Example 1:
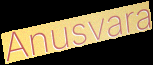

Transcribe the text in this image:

Anusvara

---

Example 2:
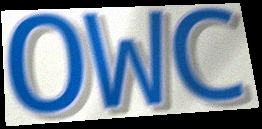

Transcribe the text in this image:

OWC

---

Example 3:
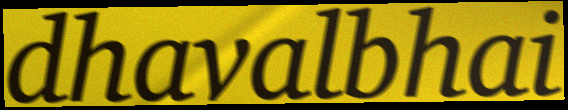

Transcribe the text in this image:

dhavalbhai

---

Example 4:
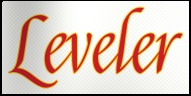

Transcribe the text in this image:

Leveler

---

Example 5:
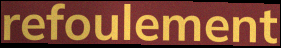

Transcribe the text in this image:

refoulement